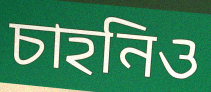
চাহনিও